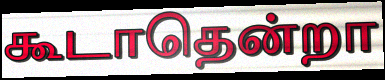
கூடாதென்றா